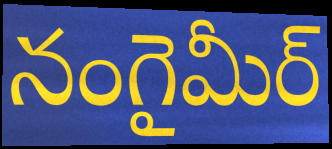
నంగైమీర్